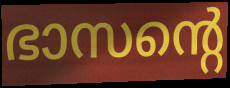
ഭാസന്റെ